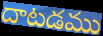
దాటడము